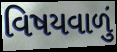
વિષયવાળું